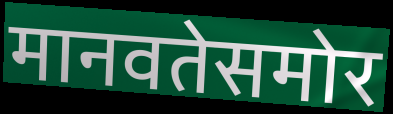
मानवतेसमोर